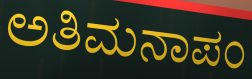
ಅತಿಮನಾಪಂ